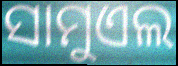
ସାମୁଏଲ